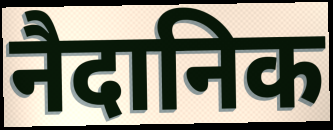
नैदानिक